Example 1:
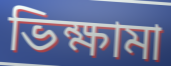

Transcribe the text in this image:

ভিক্ষামা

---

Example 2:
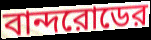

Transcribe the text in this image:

বান্দরোডের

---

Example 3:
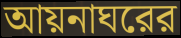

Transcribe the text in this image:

আয়নাঘরের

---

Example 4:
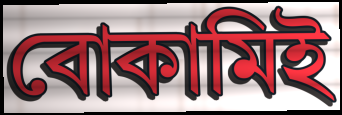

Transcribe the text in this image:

বোকামিই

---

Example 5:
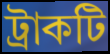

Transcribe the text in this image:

ট্রাকটি